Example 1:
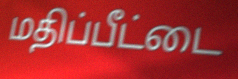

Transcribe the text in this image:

மதிப்பீட்டை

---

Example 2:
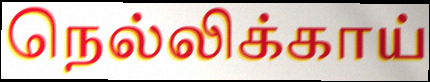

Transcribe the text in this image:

நெல்லிக்காய்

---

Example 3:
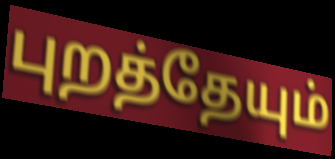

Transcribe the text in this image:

புறத்தேயும்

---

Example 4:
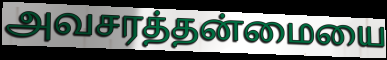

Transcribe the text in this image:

அவசரத்தன்மையை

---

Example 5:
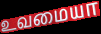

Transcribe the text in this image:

உவமையா